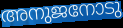
അനുജനോടു